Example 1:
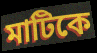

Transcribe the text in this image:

মাটিকে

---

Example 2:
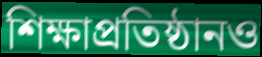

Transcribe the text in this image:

শিক্ষাপ্রতিষ্ঠানও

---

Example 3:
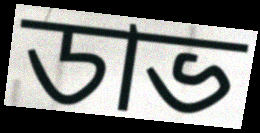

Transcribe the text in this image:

ডাভ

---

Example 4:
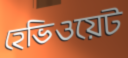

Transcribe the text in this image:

হেভিওয়েট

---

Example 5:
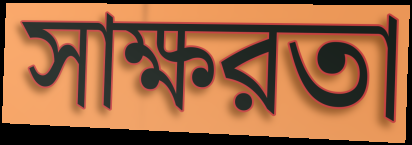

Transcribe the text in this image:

সাক্ষরতা